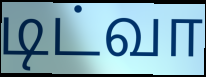
டிட்வா